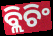
ବ୍ଲିଚିଂ